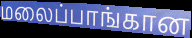
மலைப்பாங்கான